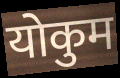
योकुम